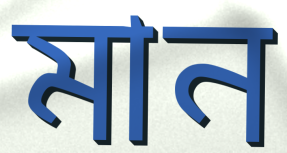
মান